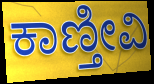
ಕಾಣ್ತೀವಿ